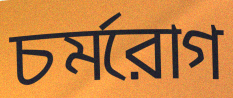
চর্মরোগ